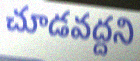
చూడవద్దని